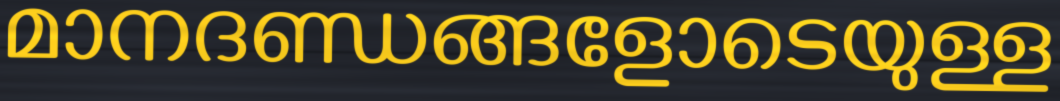
മാനദണ്ഡങ്ങളോടെയുള്ള